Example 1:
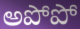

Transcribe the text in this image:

అపోపో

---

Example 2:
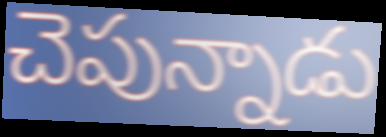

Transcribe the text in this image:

చెపున్నాడు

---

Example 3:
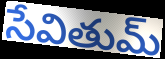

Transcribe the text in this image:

సేవితుమ్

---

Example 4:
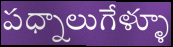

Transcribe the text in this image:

పధ్నాలుగేళ్ళూ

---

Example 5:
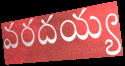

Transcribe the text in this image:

వరదయ్య